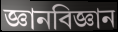
জ্ঞানবিজ্ঞান